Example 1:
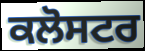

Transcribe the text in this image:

ਕਲੋਸਟਰ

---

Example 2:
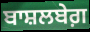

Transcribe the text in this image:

ਬਾਸ਼ਲਬੇਗ਼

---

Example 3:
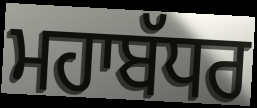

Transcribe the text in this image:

ਮਹਾਬੱਧਰ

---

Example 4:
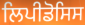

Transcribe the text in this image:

ਲਿਪੀਡੋਸਿਸ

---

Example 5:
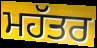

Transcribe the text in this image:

ਮਹੱਤਰ